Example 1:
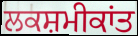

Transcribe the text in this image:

ਲਕਸ਼ਮੀਕਾਂਤ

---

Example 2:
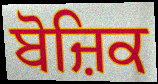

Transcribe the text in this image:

ਬੋਜ਼ਿਕ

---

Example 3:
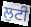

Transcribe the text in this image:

ਲੁਟੀ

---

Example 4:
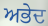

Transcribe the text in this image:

ਅਭੇਦ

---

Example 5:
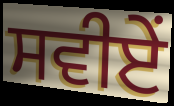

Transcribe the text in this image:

ਸਵੀਏਂ